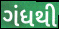
ગંધથી